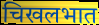
चिखलभात